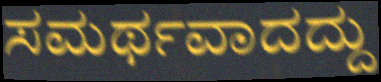
ಸಮರ್ಥವಾದದ್ದು